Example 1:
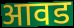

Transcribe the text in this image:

आवड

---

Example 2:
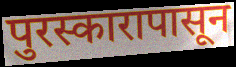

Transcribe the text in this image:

पुरस्कारापासून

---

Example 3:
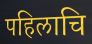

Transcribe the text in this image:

पहिलाचि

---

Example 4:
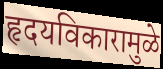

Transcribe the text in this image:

हृदयविकारामुळे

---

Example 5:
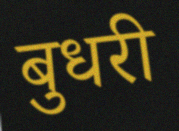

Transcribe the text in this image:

बुधरी